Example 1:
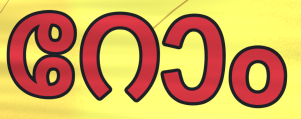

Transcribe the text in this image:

റോം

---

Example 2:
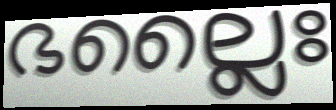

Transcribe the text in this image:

ഭല്ലൈഃ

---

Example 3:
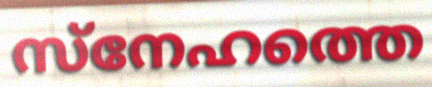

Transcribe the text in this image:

സ്നേഹത്തെ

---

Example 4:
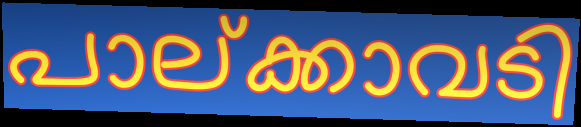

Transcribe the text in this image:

പാല്ക്കാവടി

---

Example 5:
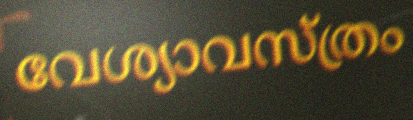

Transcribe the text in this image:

വേശ്യാവസ്ത്രം